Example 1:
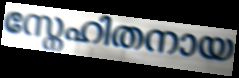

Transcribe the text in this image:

സ്നേഹിതനായ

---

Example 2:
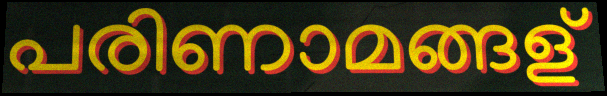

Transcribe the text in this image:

പരിണാമങ്ങള്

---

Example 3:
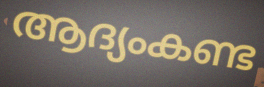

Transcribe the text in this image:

ആദ്യംകണ്ട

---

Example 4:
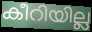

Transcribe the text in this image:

കീറിയില്ല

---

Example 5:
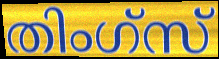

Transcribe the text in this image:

തിംഗ്സ്